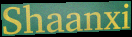
Shaanxi